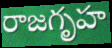
రాజగృహ